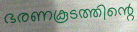
ഭരണകൂടത്തിന്റെ